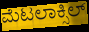
ಮೆಟಲಾಕ್ಸಿಲ್